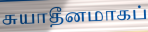
சுயாதீனமாகப்